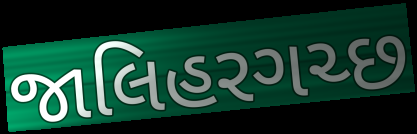
જાલિહરગચ્છ